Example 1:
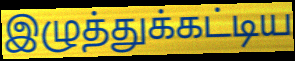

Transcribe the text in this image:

இழுத்துக்கட்டிய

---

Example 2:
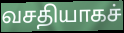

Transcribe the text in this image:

வசதியாகச்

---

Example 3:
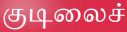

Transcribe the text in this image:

குடிலைச்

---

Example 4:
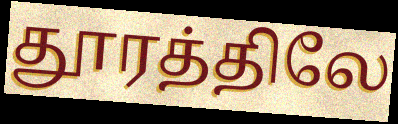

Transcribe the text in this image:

தூரத்திலே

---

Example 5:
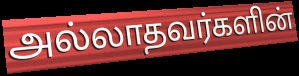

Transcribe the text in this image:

அல்லாதவர்களின்